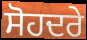
ਸੋਹਦਰੇ